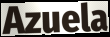
Azuela